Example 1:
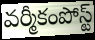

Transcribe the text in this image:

వర్మీకంపోస్ట్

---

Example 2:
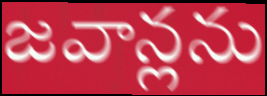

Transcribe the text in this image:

జవాన్లను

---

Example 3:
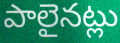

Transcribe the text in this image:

పాలైనట్లు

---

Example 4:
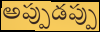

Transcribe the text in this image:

అప్పుడప్పు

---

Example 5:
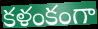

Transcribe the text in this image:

కళంకంగా